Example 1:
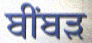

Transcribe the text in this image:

ਬੀੰਬੜ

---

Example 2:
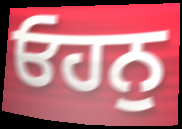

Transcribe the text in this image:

ਓਹਨੁ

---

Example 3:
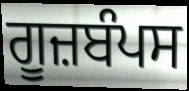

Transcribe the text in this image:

ਗੂਜ਼ਬੰਪਸ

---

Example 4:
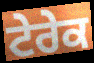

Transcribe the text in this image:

ਟੇਰੇਕ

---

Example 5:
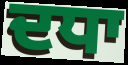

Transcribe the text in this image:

ਦਧਾ